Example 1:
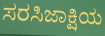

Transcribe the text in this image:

ಸರಸಿಜಾಕ್ಷಿಯ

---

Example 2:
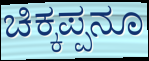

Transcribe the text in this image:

ಚಿಕ್ಕಪ್ಪನೂ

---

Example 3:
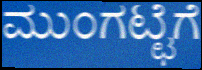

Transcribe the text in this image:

ಮುಂಗಟ್ಟೆಗೆ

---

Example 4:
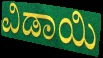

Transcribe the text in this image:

ವಿಡಾಯಿ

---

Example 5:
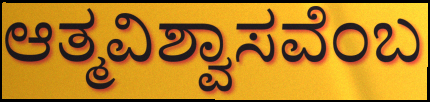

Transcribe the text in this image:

ಆತ್ಮವಿಶ್ವಾಸವೆಂಬ